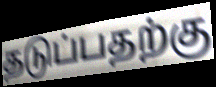
தடுப்பதற்கு